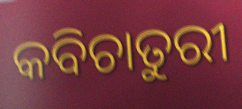
କବିଚାତୁରୀ